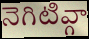
నెగిటివ్గా